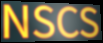
NSCS